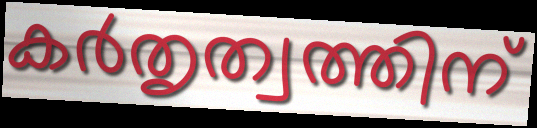
കർതൃത്വത്തിന്